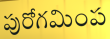
పురోగమింప